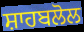
ਸ਼ਾਹਬਲੋਲ